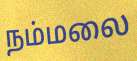
நம்மலை